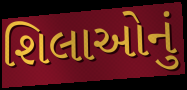
શિલાઓનું